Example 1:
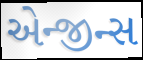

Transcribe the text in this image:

એન્જીન્સ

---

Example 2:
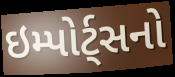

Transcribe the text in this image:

ઇમ્પોર્ટ્સનો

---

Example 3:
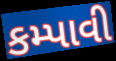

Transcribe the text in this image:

કમ્પાવી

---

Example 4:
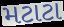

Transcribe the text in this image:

મટાટા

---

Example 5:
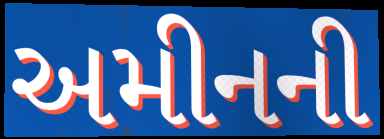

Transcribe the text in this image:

અમીનની